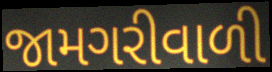
જામગરીવાળી